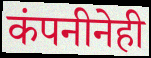
कंपनीनेही